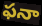
ఫనా